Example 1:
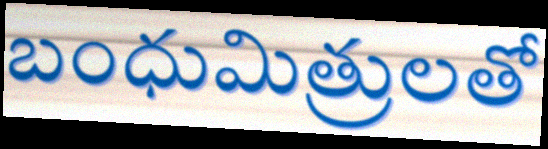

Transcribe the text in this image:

బంధుమిత్రులతో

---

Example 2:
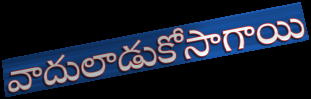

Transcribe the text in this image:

వాదులాడుకోసాగాయి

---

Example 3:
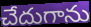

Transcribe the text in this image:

చేదుగాను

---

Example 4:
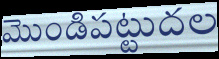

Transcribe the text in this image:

మొండిపట్టుదల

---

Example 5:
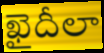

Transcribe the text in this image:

ఖైదీలా